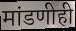
मांडणीही